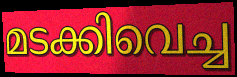
മടക്കിവെച്ച